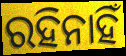
ରହିନାହିଁ